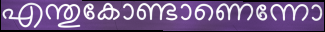
എന്തുകോണ്ടാണെന്നോ